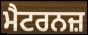
ਮੈਟਰਨਜ਼